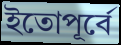
ইতোপূর্বে